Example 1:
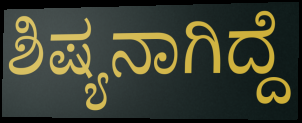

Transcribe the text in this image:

ಶಿಷ್ಯನಾಗಿದ್ದೆ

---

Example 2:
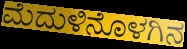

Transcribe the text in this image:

ಮೆದುಳಿನೊಳಗಿನ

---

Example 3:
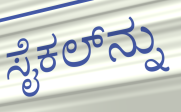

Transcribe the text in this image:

ಸೈಕಲ್‌ನ್ನು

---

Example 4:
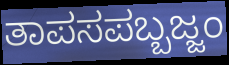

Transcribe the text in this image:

ತಾಪಸಪಬ್ಬಜ್ಜಂ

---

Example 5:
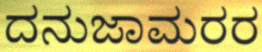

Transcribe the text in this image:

ದನುಜಾಮರರ